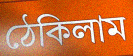
ঠেকিলাম